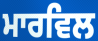
ਮਾਰਵਿਲ